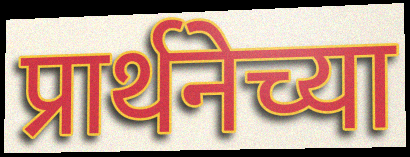
प्रार्थनेच्या